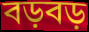
বড়বড়